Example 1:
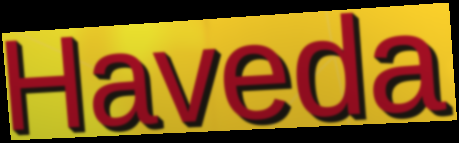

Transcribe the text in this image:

Haveda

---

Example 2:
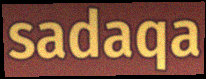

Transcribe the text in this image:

sadaqa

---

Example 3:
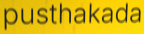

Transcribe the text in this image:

pusthakada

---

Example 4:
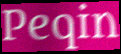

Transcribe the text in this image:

Peqin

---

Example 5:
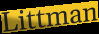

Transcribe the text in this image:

Littman